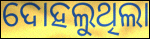
ଦୋହଲୁଥିଲା